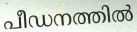
പീഡനത്തിൽ